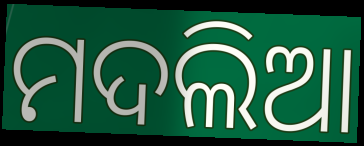
ମଦଲିଆ